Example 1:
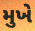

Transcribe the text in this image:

મુખે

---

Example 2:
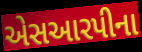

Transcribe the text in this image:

એસઆરપીના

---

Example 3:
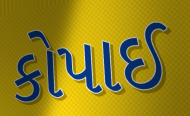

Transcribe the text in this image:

કોપાઈ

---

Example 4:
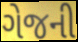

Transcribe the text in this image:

ગેજની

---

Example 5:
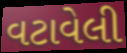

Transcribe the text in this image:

વટાવેલી